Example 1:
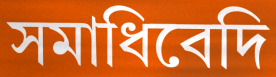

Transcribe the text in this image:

সমাধিবেদি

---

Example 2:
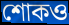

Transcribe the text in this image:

শোকও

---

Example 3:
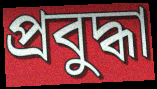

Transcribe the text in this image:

প্রবুদ্ধা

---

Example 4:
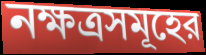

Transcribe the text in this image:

নক্ষত্রসমূহের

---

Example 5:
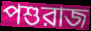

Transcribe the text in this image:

পশুরাজ